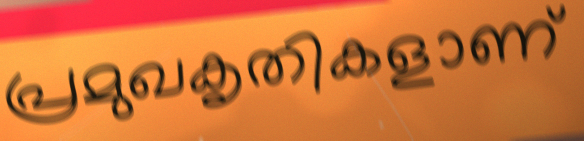
പ്രമുഖകൃതികളാണ്